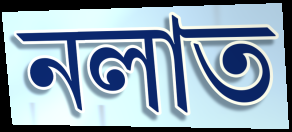
নলাত